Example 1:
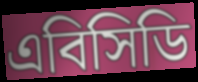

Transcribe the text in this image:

এবিসিডি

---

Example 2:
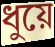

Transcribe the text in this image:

ধুয়ে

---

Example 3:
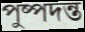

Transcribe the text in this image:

পুষ্পদন্ত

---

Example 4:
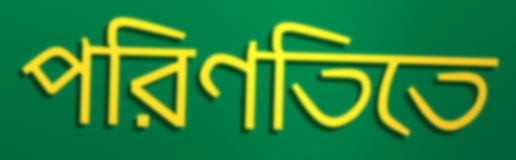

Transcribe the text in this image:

পরিণতিতে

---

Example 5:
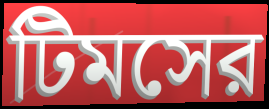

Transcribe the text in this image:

টিমসের